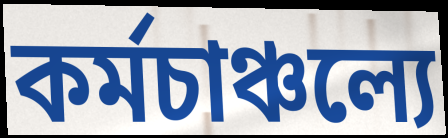
কর্মচাঞ্চল্যে